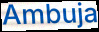
Ambuja